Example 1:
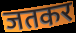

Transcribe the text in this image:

जतकर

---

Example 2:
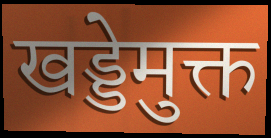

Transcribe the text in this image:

खड्डेमुक्त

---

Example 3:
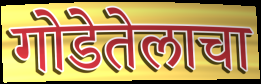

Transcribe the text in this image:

गोडेतेलाचा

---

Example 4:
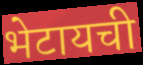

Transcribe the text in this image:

भेटायची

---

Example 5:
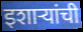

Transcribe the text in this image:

इशाऱ्यांची